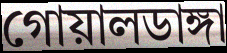
গোয়ালডাঙ্গা